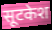
सूटकेश